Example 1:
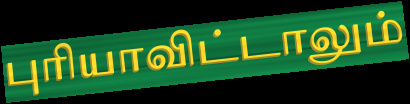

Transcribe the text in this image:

புரியாவிட்டாலும்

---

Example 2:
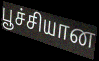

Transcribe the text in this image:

பூச்சியான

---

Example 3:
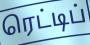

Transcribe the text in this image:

ரெட்டிப்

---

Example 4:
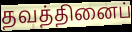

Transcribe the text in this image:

தவத்தினைப்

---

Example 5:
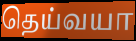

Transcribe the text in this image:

தெய்வயா